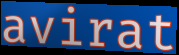
avirat